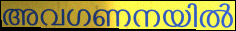
അവഗണനയിൽ